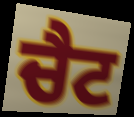
ਚੈਟ